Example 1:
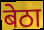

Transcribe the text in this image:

बेठा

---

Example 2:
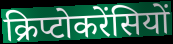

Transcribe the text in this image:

क्रिप्टोकरेंसियों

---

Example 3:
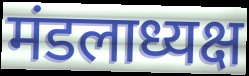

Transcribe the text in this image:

मंडलाध्यक्ष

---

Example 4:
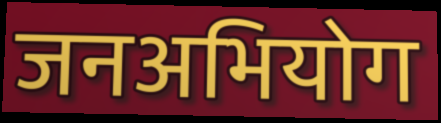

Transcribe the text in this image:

जनअभियोग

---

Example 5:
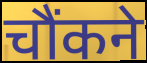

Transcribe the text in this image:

चौंकने